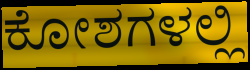
ಕೋಶಗಳಲ್ಲಿ